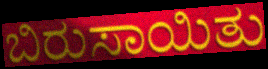
ಬಿರುಸಾಯಿತು